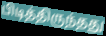
பிடித்திருந்தது